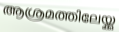
ആശ്രമത്തിലേയ്ക്കു